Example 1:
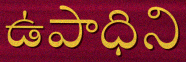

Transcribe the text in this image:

ఉపాధిని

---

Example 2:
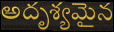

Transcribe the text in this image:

అదృశ్యమైన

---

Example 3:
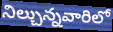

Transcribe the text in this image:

నిల్చున్నవారిలో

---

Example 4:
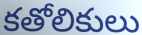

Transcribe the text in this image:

కతోలికులు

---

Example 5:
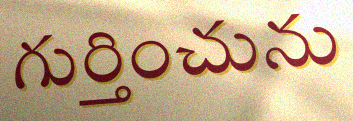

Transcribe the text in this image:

గుర్తించును